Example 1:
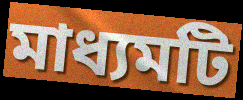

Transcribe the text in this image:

মাধ্যমটি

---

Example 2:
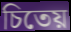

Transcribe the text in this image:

চিতেয়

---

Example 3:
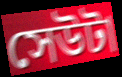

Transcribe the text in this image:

সেউটা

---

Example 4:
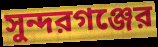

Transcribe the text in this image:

সুন্দরগঞ্জের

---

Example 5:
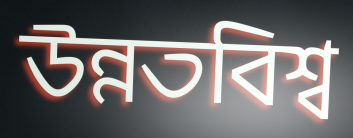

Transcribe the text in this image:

উন্নতবিশ্ব